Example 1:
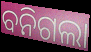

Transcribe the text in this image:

ବନିଗଲା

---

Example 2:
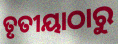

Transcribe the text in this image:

ତୃତୀୟାଠାରୁ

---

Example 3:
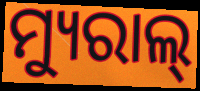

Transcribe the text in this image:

ମ୍ୟୁରାଲ୍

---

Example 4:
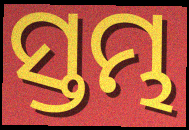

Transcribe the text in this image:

ସ୍ତମ୍ଭ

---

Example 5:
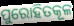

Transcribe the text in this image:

ପୁରୋହିତକୂଳ